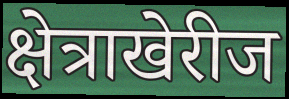
क्षेत्राखेरीज